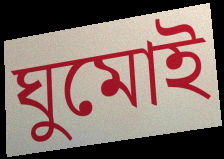
ঘুমোই